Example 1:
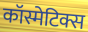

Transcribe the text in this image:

कॉस्मेटिक्स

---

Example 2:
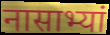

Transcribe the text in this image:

नासाभ्यां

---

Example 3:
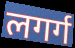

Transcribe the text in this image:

लगर्ग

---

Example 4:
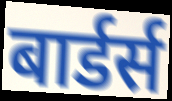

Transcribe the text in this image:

बार्डर्स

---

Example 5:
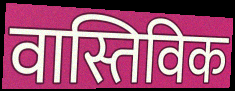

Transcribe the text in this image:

वास्तिविक